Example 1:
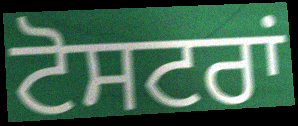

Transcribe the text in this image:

ਟੋਸਟਰਾਂ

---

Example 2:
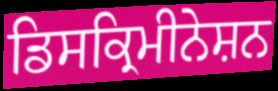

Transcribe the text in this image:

ਡਿਸਕ੍ਰਿਮੀਨੇਸ਼ਨ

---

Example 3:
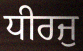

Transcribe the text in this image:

ਧੀਰਜੁ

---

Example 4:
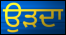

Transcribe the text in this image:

ਉੜਦਾ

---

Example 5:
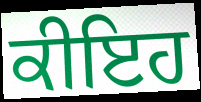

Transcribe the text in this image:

ਕੀਇਹ